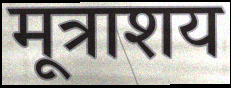
मूत्राशय